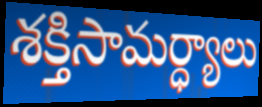
శక్తిసామర్ధ్యాలు